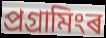
প্ৰগ্ৰামিংৰ